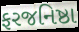
ફરજનિષ્ઠા